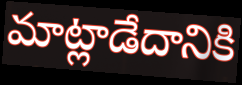
మాట్లాడేదానికి